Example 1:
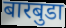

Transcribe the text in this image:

बारबुडा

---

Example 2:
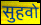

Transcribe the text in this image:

सुहवो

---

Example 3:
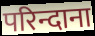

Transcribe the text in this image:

परिन्दाना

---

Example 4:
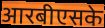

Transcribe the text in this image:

आरबीएसके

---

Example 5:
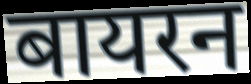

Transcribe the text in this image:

बायरन